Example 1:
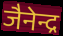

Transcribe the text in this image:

जैनेन्‍द्र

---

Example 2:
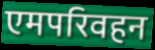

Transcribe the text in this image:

एमपरिवहन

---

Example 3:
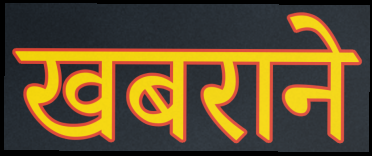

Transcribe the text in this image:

खबराने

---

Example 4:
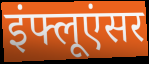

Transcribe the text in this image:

इंफ्लूएंसर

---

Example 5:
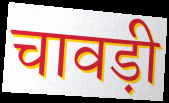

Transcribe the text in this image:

चावड़ी